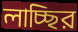
লাচ্ছির